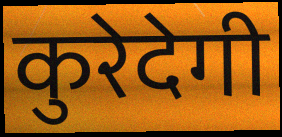
कुरेदेगी